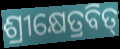
ଶ୍ରୀକ୍ଷେତ୍ରବିତ୍